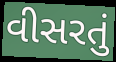
વીસરતું